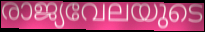
രാജ്യവേലയുടെ